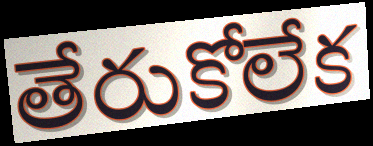
తేరుకోలేక